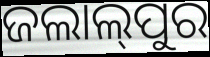
ଜଲାଲ୍‍ପୁର